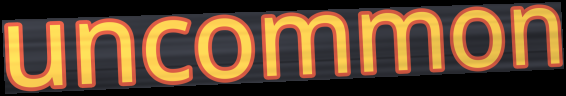
uncommon